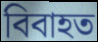
বিবাহত